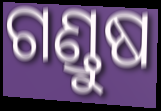
ଗଣ୍ଡୁଷ